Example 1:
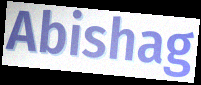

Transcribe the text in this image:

Abishag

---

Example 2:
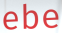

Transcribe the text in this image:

ebe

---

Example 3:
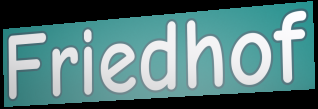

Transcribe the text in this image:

Friedhof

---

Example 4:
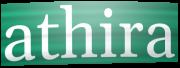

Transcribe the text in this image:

athira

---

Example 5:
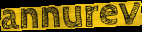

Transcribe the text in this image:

annurev